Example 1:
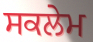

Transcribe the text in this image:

ਸਕਲੇਮ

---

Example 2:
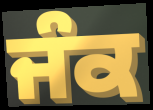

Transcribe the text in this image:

ਜੰਕ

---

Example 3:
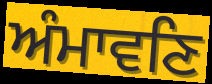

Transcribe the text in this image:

ਅੰਮਾਵਣਿ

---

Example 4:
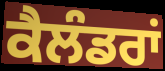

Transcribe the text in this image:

ਕੈਲੰਡਰਾਂ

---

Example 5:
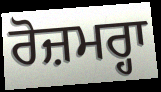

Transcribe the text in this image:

ਰੋਜ਼ਮਰ੍ਹਾ